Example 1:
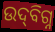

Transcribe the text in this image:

ଉଦ୍‌ବିଗ୍ନ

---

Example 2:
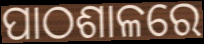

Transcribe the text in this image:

ପାଠଶାଳରେ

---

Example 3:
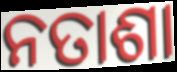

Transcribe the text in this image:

ନତାଶା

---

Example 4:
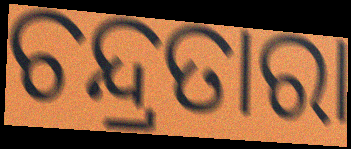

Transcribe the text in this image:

ଚନ୍ଦ୍ରତାରା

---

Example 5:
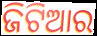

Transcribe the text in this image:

ଜିଟିଆର